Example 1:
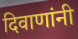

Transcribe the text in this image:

दिवाणांनी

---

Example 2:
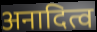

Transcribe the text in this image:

अनादित्व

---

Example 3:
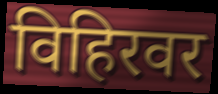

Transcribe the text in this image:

विहिरवर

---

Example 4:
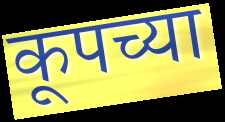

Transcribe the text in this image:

कूपच्या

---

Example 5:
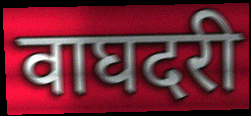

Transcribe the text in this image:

वाघदरी